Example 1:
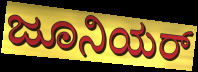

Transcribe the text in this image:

ಜೂನಿಯರ್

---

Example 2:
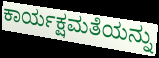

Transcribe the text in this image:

ಕಾರ್ಯಕ್ಷಮತೆಯನ್ನು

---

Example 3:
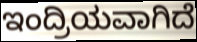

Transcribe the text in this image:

ಇಂದ್ರಿಯವಾಗಿದೆ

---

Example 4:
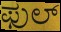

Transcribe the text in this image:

ಫುಲ್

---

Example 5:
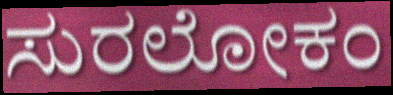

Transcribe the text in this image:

ಸುರಲೋಕಂ